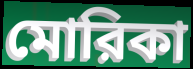
মোরিকা